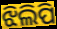
ଝିଲିପି